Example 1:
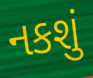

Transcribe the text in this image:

નકશું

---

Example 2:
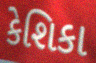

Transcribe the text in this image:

કેશિકા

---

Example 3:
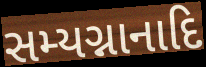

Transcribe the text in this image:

સમ્યગ્નાનાદિ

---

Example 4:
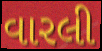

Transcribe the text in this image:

વારલી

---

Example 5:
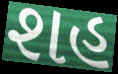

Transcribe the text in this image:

શહ